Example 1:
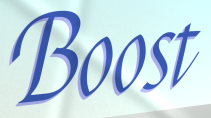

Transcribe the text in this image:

Boost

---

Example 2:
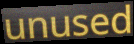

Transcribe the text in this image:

unused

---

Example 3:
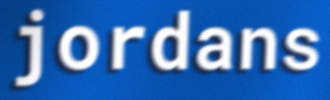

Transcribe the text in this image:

jordans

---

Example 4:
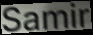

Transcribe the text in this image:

Samir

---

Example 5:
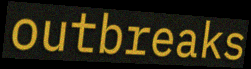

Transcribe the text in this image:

outbreaks